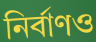
নির্বাণও